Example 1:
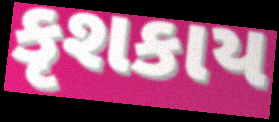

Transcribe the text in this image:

કૃશકાય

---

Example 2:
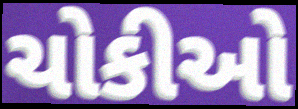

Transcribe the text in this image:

ચોકીઓ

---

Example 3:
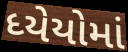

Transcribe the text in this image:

ધ્યેયોમાં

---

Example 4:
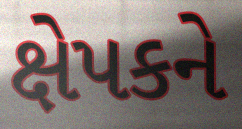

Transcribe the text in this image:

ક્ષેપકને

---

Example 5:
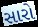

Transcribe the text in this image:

સારો